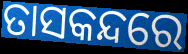
ତାସକନ୍ଦରେ